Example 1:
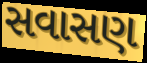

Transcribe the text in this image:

સવાસણ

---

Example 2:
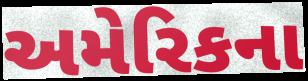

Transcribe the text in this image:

અમેરિકના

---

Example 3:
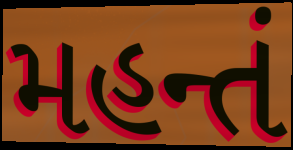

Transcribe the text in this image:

મહન્તં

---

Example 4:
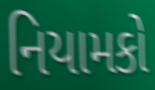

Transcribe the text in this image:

નિયામકો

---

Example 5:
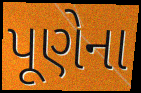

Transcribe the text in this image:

પૂણેના